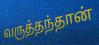
வருத்தந்தான்